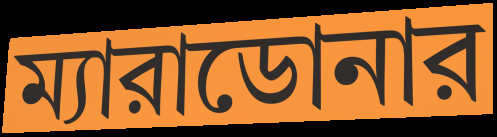
ম্যারাডোনার